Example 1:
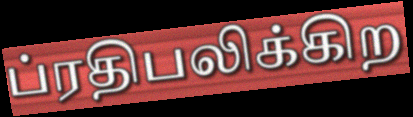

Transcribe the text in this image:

ப்ரதிபலிக்கிற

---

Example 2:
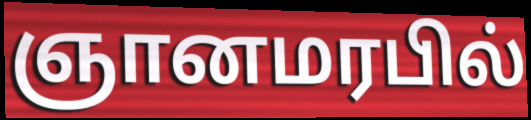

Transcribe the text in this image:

ஞானமரபில்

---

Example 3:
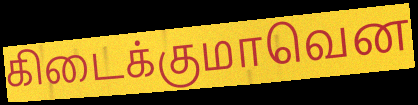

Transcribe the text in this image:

கிடைக்குமாவென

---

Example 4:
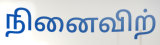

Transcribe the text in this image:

நினைவிற்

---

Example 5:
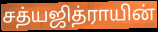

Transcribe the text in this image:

சத்யஜித்ராயின்